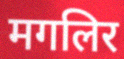
मगलिर